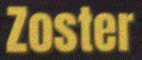
Zoster